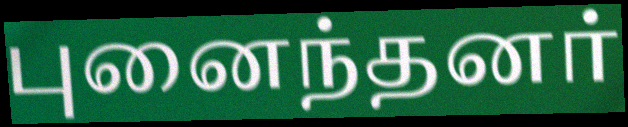
புனைந்தனர்